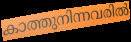
കാത്തുനിന്നവരിൽ